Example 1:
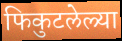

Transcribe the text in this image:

फिकुटलेल्या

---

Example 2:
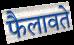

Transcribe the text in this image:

फैलावते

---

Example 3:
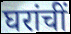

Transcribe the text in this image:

घरांचीं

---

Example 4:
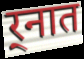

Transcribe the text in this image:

र्नात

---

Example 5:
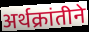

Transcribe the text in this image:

अर्थक्रांतीने